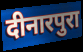
दीनारपुरा